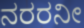
ನರರನೀ